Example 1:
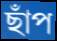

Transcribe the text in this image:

ছাঁপ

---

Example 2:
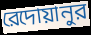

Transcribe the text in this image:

রেদোয়ানুর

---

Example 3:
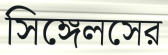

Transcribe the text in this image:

সিঙ্গেলসের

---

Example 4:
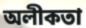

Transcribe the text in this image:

অলীকতা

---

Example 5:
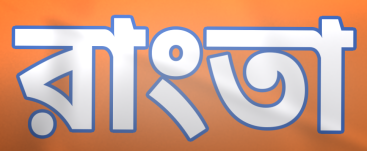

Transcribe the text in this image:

রাংতা